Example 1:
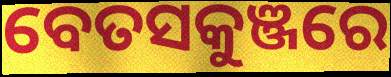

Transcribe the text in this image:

ବେତସକୁଞ୍ଜରେ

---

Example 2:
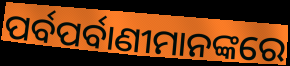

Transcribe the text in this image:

ପର୍ବପର୍ବାଣୀମାନଙ୍କରେ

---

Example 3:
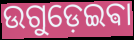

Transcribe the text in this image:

ଉଗୁଡ଼େଇଵା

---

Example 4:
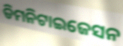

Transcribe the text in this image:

ଡିମନିଟାଇଜେସନ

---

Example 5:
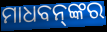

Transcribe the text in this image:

ମାଧବନ୍‌ଙ୍କର